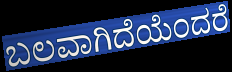
ಬಲವಾಗಿದೆಯೆಂದರೆ